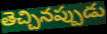
తెచ్చినప్పుడు